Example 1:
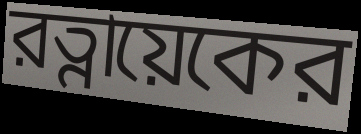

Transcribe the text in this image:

রত্নায়েকের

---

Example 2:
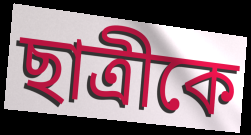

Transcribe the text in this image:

ছাত্রীকে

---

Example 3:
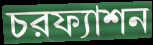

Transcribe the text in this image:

চরফ্যাশন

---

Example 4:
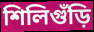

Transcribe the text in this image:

শিলিগুঁড়ি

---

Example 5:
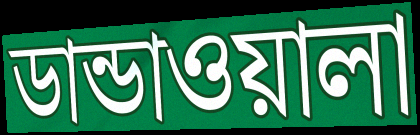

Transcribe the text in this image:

ডান্ডাওয়ালা